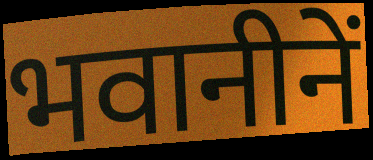
भवानीनें